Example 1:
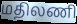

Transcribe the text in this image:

மதிலணி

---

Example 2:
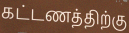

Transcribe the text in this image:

கட்டணத்திற்கு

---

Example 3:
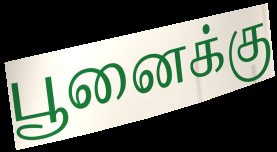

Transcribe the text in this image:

பூனைக்கு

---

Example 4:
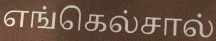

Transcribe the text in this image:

எங்கெல்சால்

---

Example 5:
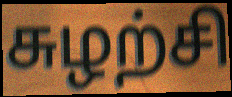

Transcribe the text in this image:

சுழற்சி